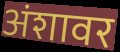
अंशावर